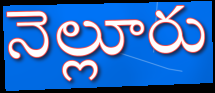
నెల్లూరు